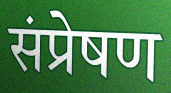
संप्रेषण